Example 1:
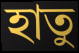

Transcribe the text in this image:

হাতু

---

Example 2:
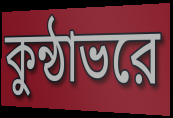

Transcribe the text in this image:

কুন্ঠাভরে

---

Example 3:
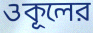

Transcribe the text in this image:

ওকূলের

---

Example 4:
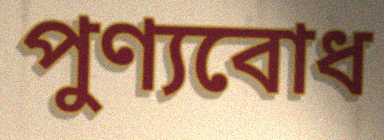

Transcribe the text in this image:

পুণ্যবোধ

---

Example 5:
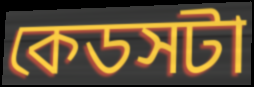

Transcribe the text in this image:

কেডসটা